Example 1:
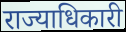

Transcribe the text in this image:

राज्याधिकारी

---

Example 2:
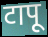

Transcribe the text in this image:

टापू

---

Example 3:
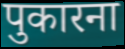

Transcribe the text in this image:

पुकारना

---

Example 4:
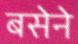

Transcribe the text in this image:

बसेने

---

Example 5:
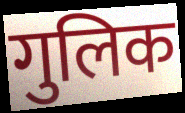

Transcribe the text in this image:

गुलिक